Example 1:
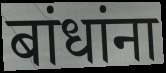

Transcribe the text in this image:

बांधांना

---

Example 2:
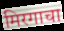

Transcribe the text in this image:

मिरगाचा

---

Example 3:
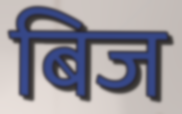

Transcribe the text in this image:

बिज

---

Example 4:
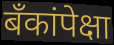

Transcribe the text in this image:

बँकांपेक्षा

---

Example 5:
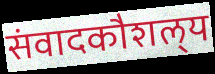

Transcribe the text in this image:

संवादकौशल्य